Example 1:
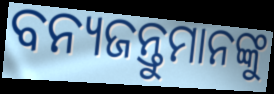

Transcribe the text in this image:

ବନ୍ୟଜନ୍ତୁମାନଙ୍କୁ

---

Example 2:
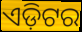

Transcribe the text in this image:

ଏଡ଼ିଟର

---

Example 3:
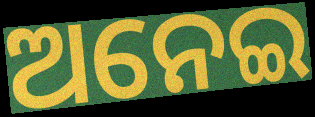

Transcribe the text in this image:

ଅନେଇ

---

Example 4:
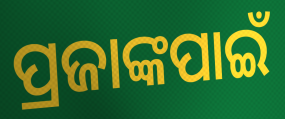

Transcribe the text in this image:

ପ୍ରଜାଙ୍କପାଇଁ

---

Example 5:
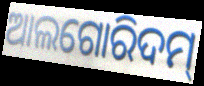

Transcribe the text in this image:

ଆଲଗୋରିଦମ୍